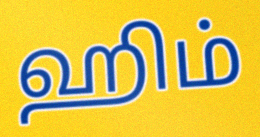
ஹிம்